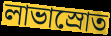
লাভাস্রোত